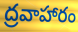
ద్రవాహారం